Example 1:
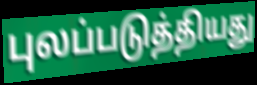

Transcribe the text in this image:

புலப்படுத்தியது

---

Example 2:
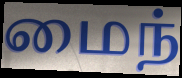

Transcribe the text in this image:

மைந்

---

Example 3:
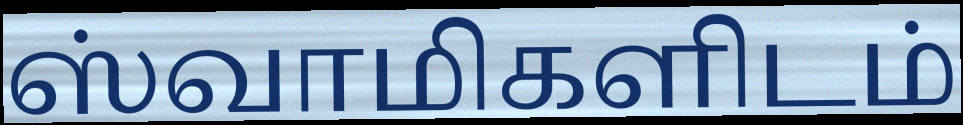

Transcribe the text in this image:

ஸ்வாமிகளிடம்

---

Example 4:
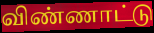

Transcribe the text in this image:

விண்ணாட்டு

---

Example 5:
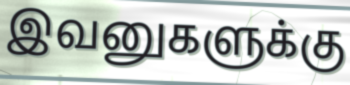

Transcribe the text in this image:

இவனுகளுக்கு